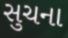
સુચના